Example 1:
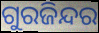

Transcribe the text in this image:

ଗୁରଜିନ୍ଦର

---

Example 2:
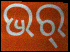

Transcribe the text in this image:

ଭର୍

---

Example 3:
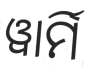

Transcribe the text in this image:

ୱାର୍ମି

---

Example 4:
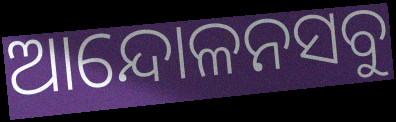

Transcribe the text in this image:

ଆନ୍ଦୋଳନସବୁ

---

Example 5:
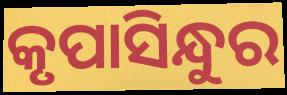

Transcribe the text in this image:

କୃପାସିନ୍ଧୁର